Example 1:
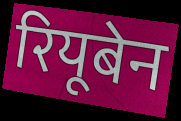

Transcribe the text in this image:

रियूबेन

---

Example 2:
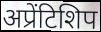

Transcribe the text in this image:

अप्रेंटिशिप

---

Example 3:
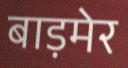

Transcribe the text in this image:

बाड़मेर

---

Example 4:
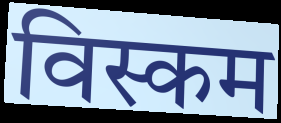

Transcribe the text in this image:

विस्कम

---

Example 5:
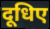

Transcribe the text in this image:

दूधिए